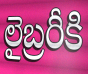
లైబ్రరీకి